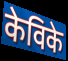
केविके